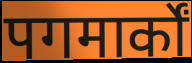
पगमार्कों